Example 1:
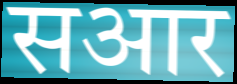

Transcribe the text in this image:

सआर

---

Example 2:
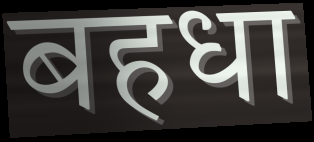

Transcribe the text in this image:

बहधा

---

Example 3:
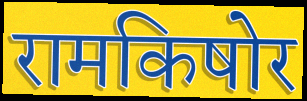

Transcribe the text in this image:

रामकिषोर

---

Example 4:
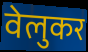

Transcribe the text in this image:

वेलुकर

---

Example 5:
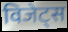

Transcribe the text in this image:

विजेट्स